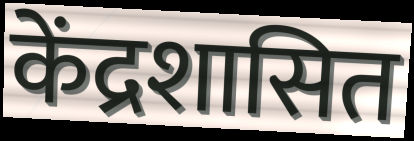
केंद्रशासित